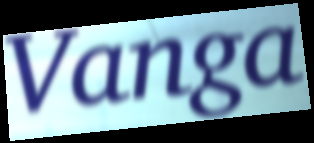
Vanga